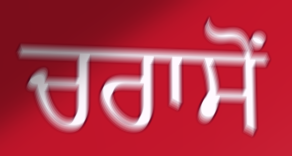
ਚਰਾਸੋਂ